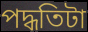
পদ্ধতিটা